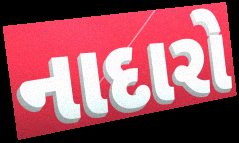
નાદારો